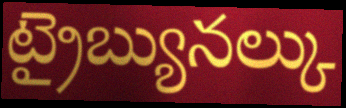
ట్రైబ్యునల్కు